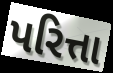
પરિત્તા